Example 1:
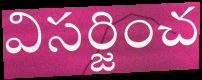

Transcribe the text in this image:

విసర్జించ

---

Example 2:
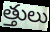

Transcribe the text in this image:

త్తులు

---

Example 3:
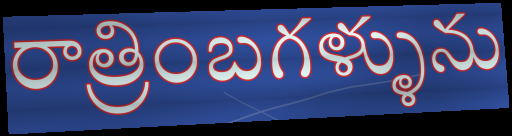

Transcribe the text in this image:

రాత్రింబగళ్ళును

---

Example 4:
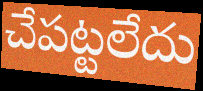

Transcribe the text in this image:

చేపట్టలేదు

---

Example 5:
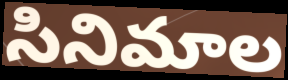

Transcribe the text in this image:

సినిమాల